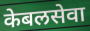
केबलसेवा